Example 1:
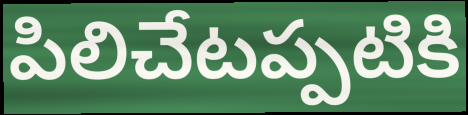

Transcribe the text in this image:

పిలిచేటప్పటికి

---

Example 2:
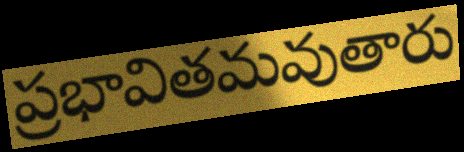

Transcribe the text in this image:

ప్రభావితమవుతారు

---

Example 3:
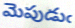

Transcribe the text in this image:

మెపుడుఁ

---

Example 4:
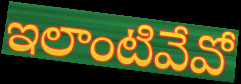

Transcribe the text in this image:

ఇలాంటివేవో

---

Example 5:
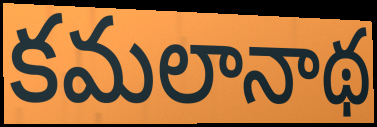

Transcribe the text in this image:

కమలానాథ